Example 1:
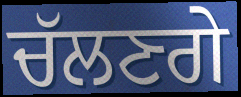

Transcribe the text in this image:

ਚੱਲਣਗੇ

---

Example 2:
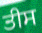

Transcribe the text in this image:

ਤੀਸ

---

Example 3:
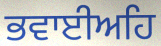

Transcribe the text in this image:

ਭਵਾਈਅਹਿ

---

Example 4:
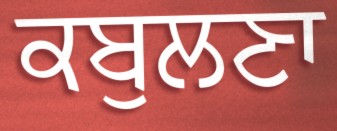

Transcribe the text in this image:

ਕਬੁਲਣਾ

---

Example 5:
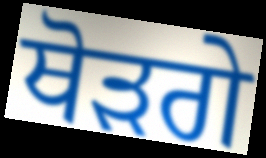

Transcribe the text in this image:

ਥੋੜਗੇ